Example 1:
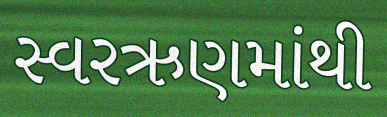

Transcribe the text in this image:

સ્વરઋણમાંથી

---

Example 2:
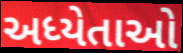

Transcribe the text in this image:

અધ્યેતાઓ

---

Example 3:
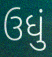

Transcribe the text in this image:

ઉધું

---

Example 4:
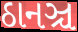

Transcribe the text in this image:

ઠાનઞ્ચ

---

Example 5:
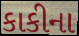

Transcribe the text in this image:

કાકીના